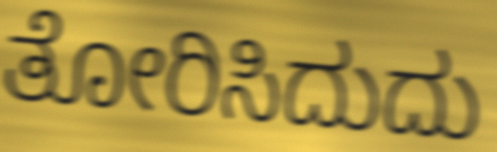
ತೋರಿಸಿದುದು